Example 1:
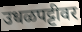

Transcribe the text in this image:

उधळपट्टीवर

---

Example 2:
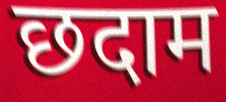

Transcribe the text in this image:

छदाम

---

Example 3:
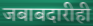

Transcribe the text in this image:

जबाबदारीही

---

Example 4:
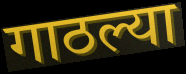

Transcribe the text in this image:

गाठल्या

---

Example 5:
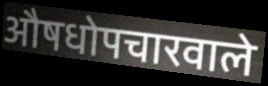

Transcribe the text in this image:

औषधोपचारवाले